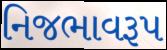
નિજભાવરૂપ